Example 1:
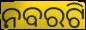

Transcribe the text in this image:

ନବରଟି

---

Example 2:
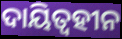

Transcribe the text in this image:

ଦାୟିତ୍ଵହୀନ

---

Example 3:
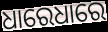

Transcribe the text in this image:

ଧାରେଧାରେ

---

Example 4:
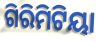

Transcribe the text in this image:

ଗିରିମିଟିୟା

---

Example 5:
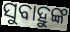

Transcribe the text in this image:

ସୁବାହୁଙ୍କ